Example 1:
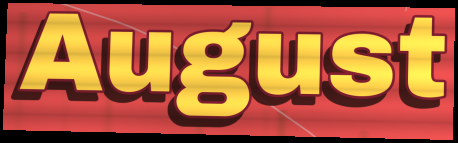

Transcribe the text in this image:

August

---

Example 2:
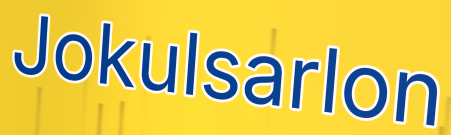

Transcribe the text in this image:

Jokulsarlon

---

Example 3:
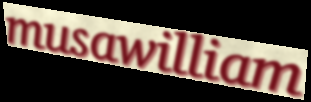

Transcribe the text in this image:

musawilliam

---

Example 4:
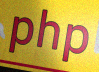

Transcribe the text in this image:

php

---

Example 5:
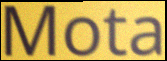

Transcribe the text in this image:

Mota